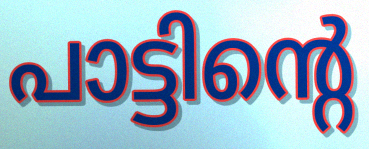
പാട്ടിന്റെ